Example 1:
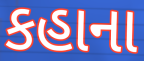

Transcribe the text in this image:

કહાના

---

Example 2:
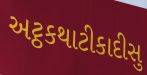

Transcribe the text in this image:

અટ્ઠકથાટીકાદીસુ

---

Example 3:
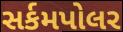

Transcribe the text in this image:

સર્કમપોલર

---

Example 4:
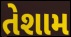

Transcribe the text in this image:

તેશામ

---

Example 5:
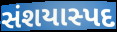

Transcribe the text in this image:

સંશયાસ્પદ